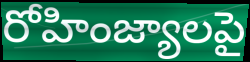
రోహింజ్యాలపై